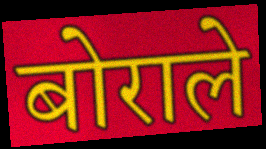
बोराले